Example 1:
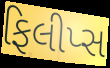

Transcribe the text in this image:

ફિલીપ્સ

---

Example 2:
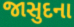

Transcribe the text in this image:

જાસુદના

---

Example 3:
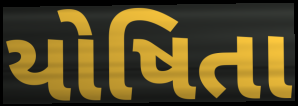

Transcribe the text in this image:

યોષિતા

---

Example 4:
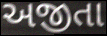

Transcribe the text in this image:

અજીતા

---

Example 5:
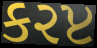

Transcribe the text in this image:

કરપ્ટ